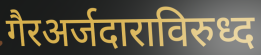
गैरअर्जदाराविरुध्द